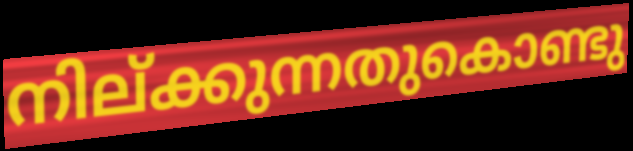
നില്ക്കുന്നതുകൊണ്ടു